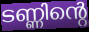
ടണ്ണിന്റെ